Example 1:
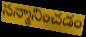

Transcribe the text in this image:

సన్మానించడం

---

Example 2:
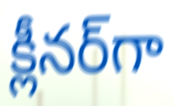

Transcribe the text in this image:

క్లీనర్‌గా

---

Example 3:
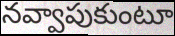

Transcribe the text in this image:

నవ్వాపుకుంటూ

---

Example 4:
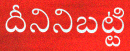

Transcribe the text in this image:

దీనినిబట్టి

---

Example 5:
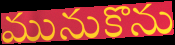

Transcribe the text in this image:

మునుకొను